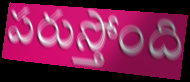
పరుస్తోంది